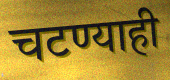
चटण्याही